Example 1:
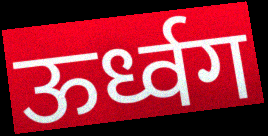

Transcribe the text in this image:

ऊर्ध्वग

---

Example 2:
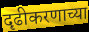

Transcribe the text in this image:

दृढीकरणाच्या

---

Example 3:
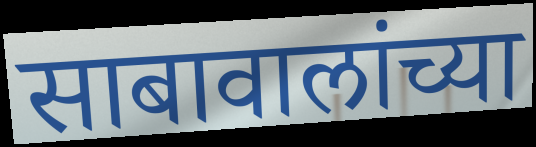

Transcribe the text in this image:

साबावालांच्या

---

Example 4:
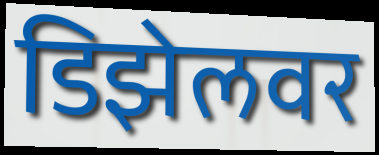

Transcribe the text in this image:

डिझेलवर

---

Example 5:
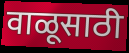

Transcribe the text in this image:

वाळूसाठी